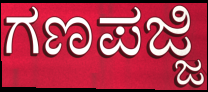
ಗಣಪಜ್ಜಿ